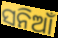
ସନିଆଁ